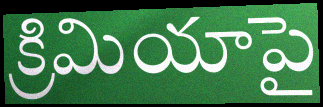
క్రిమియాపై